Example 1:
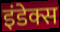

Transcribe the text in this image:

इंडेक्स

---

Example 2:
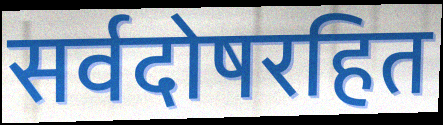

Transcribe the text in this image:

सर्वदोषरहित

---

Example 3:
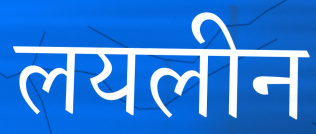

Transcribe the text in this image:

लयलीन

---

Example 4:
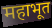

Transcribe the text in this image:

महाभूत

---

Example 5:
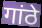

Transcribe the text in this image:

गांठे